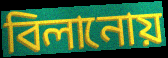
বিলানোয়